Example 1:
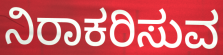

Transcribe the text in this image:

ನಿರಾಕರಿಸುವ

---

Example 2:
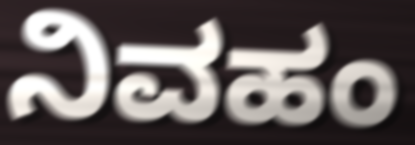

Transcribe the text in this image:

ನಿವಹಂ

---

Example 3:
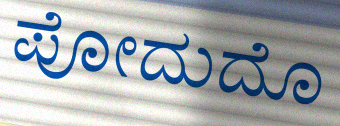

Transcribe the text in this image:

ಪೋದುದೊ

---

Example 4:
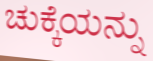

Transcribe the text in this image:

ಚುಕ್ಕೆಯನ್ನು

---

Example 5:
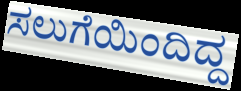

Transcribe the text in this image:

ಸಲುಗೆಯಿಂದಿದ್ದ